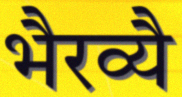
भैरव्यै